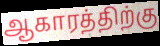
ஆகாரத்திற்கு